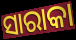
ସାରାକା